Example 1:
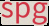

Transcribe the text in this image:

spg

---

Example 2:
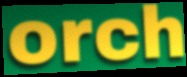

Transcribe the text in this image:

orch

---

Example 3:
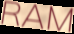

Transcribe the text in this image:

RAM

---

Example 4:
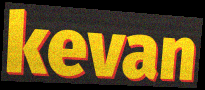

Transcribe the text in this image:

kevan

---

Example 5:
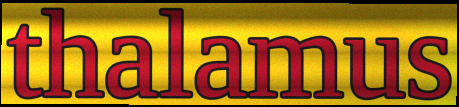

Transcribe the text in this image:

thalamus